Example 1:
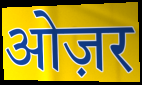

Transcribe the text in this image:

ओज़र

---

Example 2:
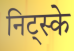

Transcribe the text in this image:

निट्स्के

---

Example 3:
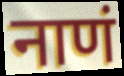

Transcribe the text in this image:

नाणं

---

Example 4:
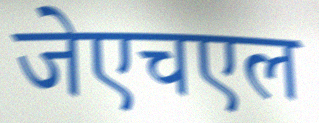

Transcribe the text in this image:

जेएचएल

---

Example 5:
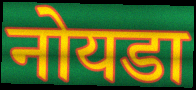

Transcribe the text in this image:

नोयडा